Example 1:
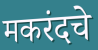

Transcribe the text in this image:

मकरंदचे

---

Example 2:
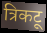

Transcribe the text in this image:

त्रिकटू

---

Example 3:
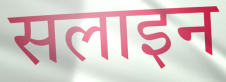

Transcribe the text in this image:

सलाइन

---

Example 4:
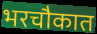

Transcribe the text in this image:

भरचौकात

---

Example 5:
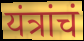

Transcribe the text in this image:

यंत्रांचं